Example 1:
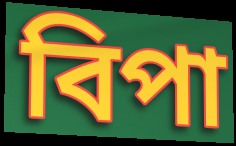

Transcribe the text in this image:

বিপা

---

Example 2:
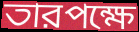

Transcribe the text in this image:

তারপক্ষে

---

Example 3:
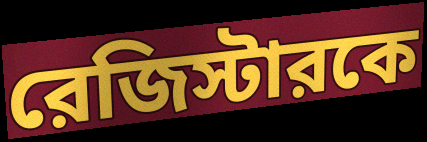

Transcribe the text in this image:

রেজিস্টারকে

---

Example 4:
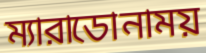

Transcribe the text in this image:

ম্যারাডোনাময়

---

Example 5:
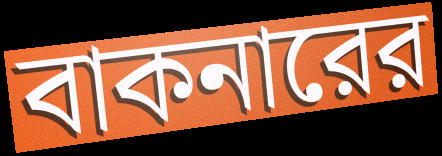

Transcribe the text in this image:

বাকনারের